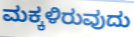
ಮಕ್ಕಳಿರುವುದು